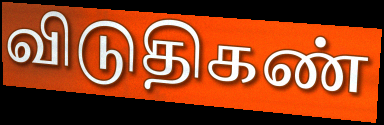
விடுதிகண்